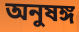
অনুষঙ্গ